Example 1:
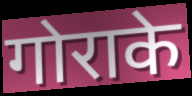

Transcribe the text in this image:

गोराके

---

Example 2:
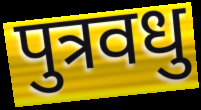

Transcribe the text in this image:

पुत्रवधु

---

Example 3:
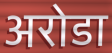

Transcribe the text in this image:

अरोडा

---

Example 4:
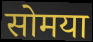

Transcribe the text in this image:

सोमया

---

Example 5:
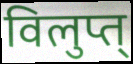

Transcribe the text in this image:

विलुप्त्